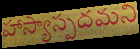
హాస్యాస్పదమని